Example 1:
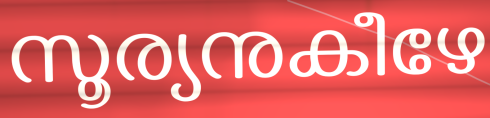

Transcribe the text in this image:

സൂര്യനുകീഴേ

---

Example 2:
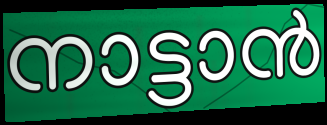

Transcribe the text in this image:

നാട്ടാൻ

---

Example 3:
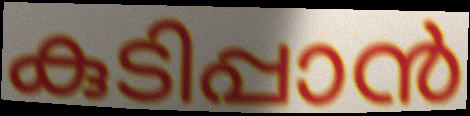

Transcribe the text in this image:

കുടിപ്പാൻ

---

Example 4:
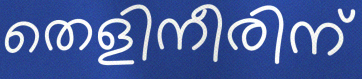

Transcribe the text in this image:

തെളിനീരിന്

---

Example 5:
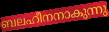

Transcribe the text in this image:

ബലഹീനനാകുന്നു